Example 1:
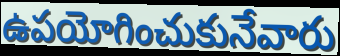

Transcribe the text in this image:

ఉపయోగించుకునేవారు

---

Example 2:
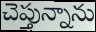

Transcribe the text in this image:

చెప్తున్నాను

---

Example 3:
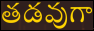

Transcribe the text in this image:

తడవుగా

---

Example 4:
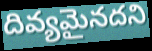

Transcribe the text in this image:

దివ్యమైనదని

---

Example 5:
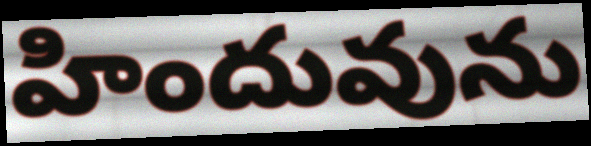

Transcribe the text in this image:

హిందువును